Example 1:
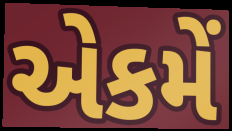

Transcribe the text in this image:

એકમેં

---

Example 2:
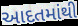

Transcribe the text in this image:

આદતમાંથી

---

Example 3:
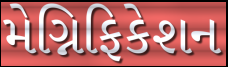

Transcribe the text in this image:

મેગ્નિફિકેશન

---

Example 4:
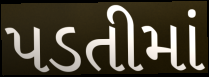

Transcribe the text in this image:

પડતીમાં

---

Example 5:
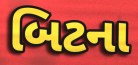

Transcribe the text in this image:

બિટના